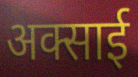
अक्साई